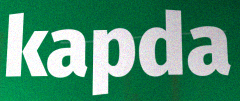
kapda